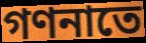
গণনাতে